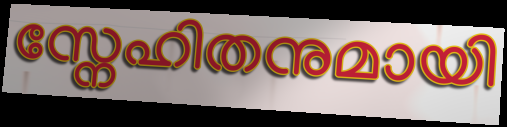
സ്നേഹിതനുമായി